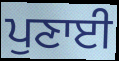
ਪੁਣਾਈ